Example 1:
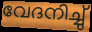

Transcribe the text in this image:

വേദനിച്ചു്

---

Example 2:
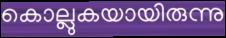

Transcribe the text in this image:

കൊല്ലുകയായിരുന്നു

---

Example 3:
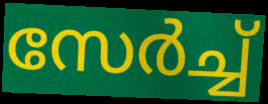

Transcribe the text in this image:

സേർച്ച്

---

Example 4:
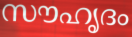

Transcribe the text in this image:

സൗഹൃദം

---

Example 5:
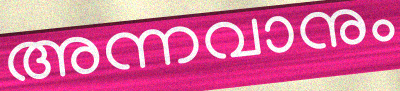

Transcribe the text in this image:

അന്നവാനും